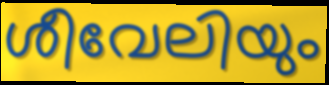
ശീവേലിയും